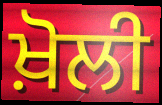
ਖ਼ੋਲੀ